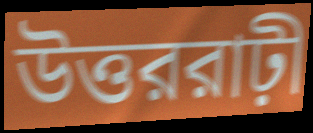
উত্তররাঢ়ী